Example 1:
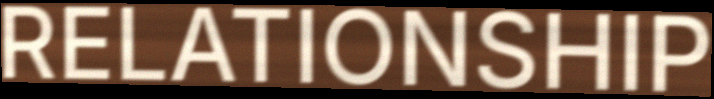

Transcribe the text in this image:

RELATIONSHIP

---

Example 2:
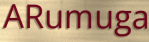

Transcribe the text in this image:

ARumuga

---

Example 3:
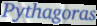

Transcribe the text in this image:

Pythagoras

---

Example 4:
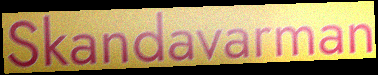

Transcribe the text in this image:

Skandavarman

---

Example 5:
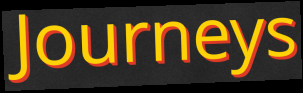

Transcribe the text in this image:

Journeys